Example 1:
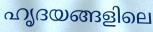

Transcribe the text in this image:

ഹൃദയങ്ങളിലെ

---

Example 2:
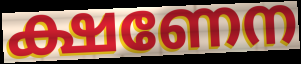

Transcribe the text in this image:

ക്ഷണേന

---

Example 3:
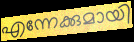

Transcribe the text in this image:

എന്നേക്കുമായി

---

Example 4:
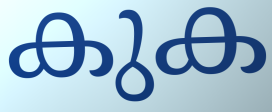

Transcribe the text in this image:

കുക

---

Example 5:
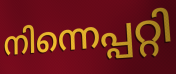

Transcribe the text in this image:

നിന്നെപ്പറ്റി